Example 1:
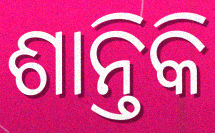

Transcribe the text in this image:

ଶାନ୍ତିକି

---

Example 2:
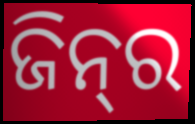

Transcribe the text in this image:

ଜିନ୍‌ର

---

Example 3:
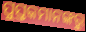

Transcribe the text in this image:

ପୁସ୍ତକମାନଙ୍କରୁ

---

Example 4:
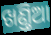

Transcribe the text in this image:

ଖଣ୍ତିଆ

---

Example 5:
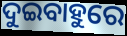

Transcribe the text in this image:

ଦୁଇବାହୁରେ